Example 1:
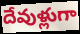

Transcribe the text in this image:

దేవుళ్లుగా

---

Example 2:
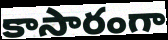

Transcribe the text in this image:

కాసారంగా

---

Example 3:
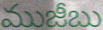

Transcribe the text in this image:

ముజీబు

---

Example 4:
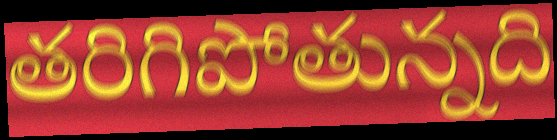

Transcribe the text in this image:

తరిగిపోతున్నది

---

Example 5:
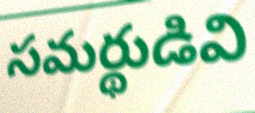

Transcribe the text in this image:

సమర్థుడివి